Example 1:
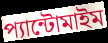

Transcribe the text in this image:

প্যান্টোমাইম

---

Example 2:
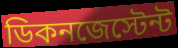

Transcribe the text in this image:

ডিকনজেস্টেন্ট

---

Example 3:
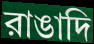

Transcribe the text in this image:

রাঙাদি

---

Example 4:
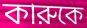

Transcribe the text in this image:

কারুকে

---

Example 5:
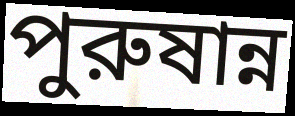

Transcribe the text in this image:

পুরুষান্ন